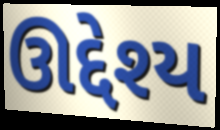
ઊદ્દેશ્ય